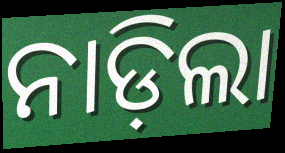
ନାଡ଼ିଲା